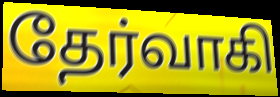
தேர்வாகி